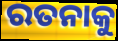
ରତନାକୁ